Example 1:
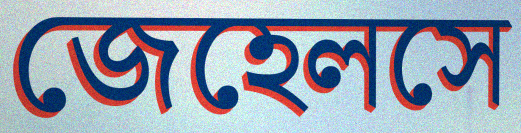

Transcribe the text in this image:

জেহেলসে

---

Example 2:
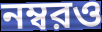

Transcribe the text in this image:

নম্বরও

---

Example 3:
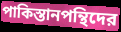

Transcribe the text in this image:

পাকিস্তানপন্থিদের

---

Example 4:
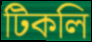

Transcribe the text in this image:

টিকলি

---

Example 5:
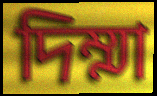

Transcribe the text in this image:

দিম্মা